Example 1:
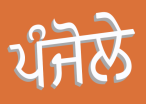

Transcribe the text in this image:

ਪੰਜੋਲੇ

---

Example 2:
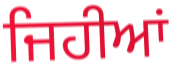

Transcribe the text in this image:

ਜਿਹੀਆਂ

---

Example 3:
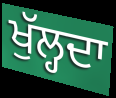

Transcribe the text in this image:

ਖੁੱਲ੍ਹਦਾ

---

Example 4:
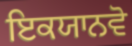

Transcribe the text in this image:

ਇਕਯਾਨਵੋ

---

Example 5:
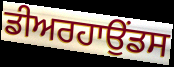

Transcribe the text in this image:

ਡੀਅਰਹਾਉਂਡਸ